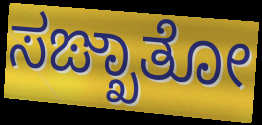
ಸಙ್ಖಾತೋ